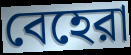
বেহেরা